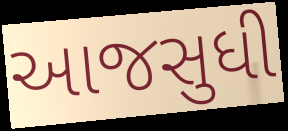
આજસુધી